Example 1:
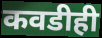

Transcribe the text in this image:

कवडीही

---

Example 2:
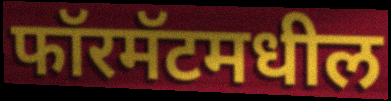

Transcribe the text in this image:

फॉरमॅटमधील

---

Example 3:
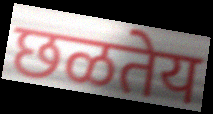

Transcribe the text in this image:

छळतेय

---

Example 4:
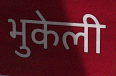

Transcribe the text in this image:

भुकेली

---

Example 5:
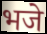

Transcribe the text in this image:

भजे